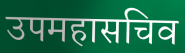
उपमहासचिव